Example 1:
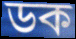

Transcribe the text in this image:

ডক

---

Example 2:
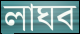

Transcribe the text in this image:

লাঘব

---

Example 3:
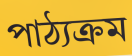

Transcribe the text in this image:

পাঠ্য়ক্ৰম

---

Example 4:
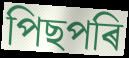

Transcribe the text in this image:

পিছপৰি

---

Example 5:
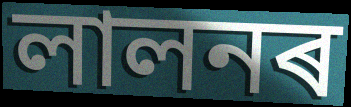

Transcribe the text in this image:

লালনৰ